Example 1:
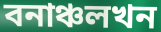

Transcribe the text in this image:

বনাঞ্চলখন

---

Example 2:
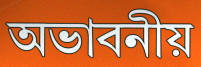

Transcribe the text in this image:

অভাবনীয়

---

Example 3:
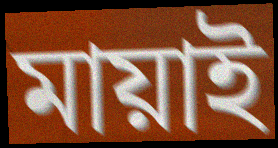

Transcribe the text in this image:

মায়াই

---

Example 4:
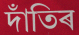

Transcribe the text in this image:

দাঁতিৰ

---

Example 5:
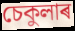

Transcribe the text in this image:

চেকুলাৰ